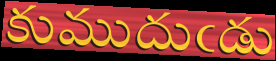
కుముదుఁడు